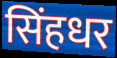
सिंहधर